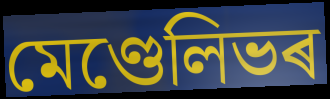
মেণ্ডেলিভৰ